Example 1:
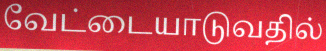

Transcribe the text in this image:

வேட்டையாடுவதில்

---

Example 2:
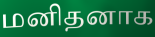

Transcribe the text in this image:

மனிதனாக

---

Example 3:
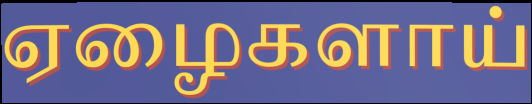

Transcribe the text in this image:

ஏழைகளாய்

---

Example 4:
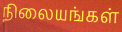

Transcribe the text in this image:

நிலையங்கள்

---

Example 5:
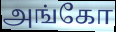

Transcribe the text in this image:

அங்கோ